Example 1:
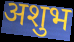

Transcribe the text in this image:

अशुभ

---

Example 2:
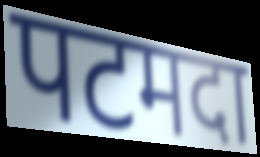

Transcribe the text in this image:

पटमदा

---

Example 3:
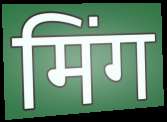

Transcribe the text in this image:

मिंग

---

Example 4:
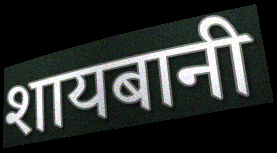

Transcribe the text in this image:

शायबानी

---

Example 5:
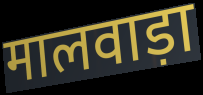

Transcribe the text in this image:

मालवाड़ा